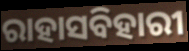
ରାହାସବିହାରୀ